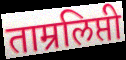
ताम्रलिप्ती